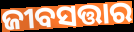
ଜୀବସତ୍ତାର